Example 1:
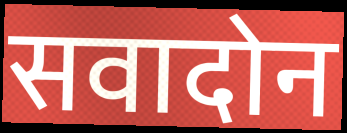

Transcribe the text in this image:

सवादोन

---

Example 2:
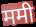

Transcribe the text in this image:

ममी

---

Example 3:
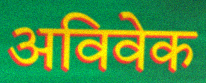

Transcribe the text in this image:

अविवेक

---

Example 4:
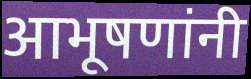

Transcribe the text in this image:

आभूषणांनी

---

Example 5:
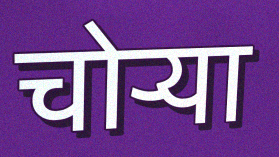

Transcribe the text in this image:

चोऱ्या